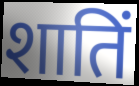
शातिं